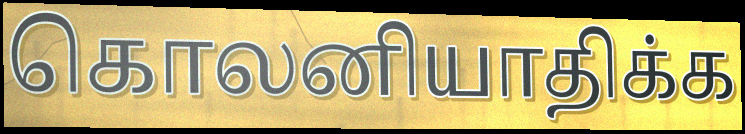
கொலனியாதிக்க